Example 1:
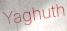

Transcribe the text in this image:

Yaghuth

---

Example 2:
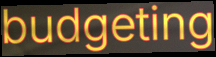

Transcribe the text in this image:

budgeting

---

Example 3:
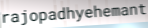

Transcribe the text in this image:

rajopadhyehemant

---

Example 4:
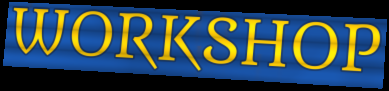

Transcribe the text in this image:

WORKSHOP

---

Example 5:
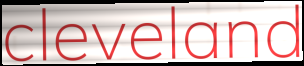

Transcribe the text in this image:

cleveland